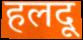
हलदू